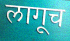
लागूच